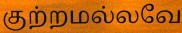
குற்றமல்லவே